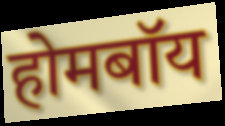
होमबॉय